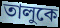
তালুকে